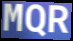
MQR